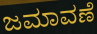
ಜಮಾವಣೆ